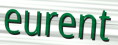
eurent